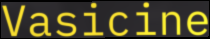
Vasicine